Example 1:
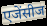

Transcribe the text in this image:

एजेंसीज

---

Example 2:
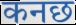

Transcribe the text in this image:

कनछ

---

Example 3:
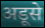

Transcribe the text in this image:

अडूसे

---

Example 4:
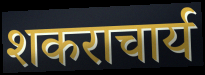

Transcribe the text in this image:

शकराचार्य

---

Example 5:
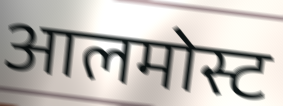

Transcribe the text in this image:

आलमोस्ट